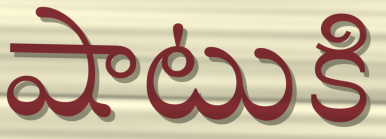
షాటుకి